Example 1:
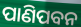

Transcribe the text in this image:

ପାଣିପବନ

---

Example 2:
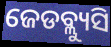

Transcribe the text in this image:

ଜେଡବ୍ଲ୍ୟୁସି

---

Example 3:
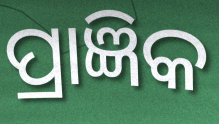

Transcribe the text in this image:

ପ୍ରାଜ୍ଞିକ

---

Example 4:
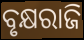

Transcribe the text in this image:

ବୃକ୍ଷରାଜି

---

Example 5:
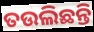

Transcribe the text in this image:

ତଉଲିଛନ୍ତି